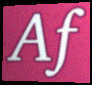
Af